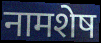
नामशेष